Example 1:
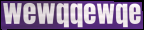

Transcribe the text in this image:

wewqqewqe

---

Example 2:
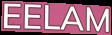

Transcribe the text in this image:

EELAM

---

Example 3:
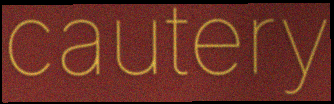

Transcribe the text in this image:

cautery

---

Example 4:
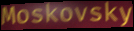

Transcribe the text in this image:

Moskovsky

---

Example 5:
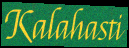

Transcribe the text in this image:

Kalahasti